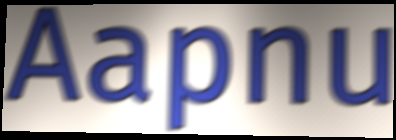
Aapnu